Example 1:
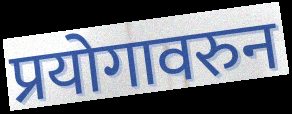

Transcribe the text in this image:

प्रयोगावरुन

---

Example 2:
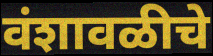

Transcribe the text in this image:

वंशावळीचे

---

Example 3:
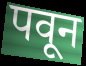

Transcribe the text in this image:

पवून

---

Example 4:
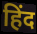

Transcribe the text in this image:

हिंद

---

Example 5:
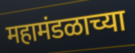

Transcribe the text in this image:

महामंडळाच्या